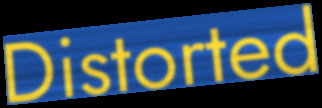
Distorted